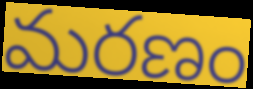
మరణం